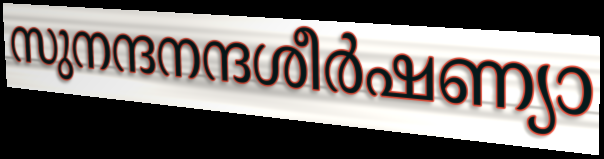
സുനന്ദനന്ദശീർഷണ്യാ